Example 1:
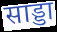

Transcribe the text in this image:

साड्डा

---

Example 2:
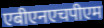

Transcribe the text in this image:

एबीएनएचपीएम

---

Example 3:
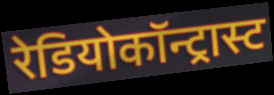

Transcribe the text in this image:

रेडियोकॉन्ट्रास्ट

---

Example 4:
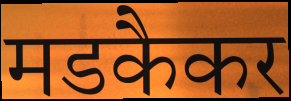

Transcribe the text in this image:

मडकैकर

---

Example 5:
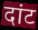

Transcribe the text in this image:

दांट